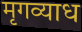
मृगव्याध